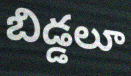
బిడ్డలూ